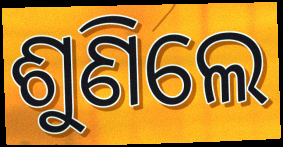
ଶୁଣିଲେ